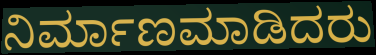
ನಿರ್ಮಾಣಮಾಡಿದರು